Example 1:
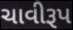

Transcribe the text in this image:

ચાવીરૂપ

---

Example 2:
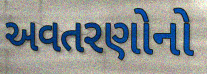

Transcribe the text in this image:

અવતરણોનો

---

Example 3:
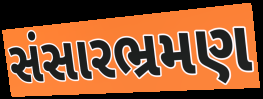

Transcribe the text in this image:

સંસારભ્રમણ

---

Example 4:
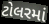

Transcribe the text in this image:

ટોલરમાં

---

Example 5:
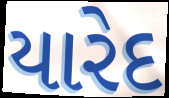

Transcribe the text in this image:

યારેદ